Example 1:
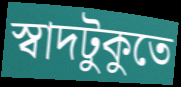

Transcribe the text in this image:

স্বাদটুকুতে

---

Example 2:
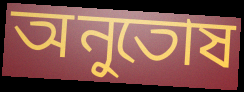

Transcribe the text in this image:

অনুতোষ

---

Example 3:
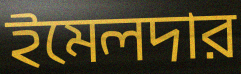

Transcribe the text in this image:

ইমেলদার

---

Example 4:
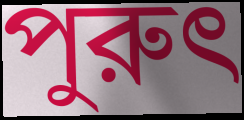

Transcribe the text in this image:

পুরুৎ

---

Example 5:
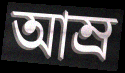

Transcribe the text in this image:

আম্র